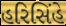
હરિસિંહે